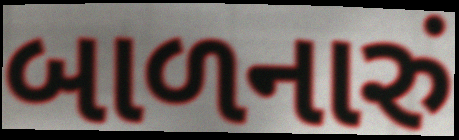
બાળનારું